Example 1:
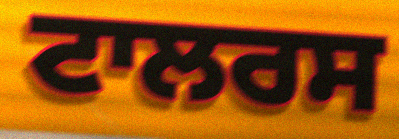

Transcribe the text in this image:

ਟਾਲਰਸ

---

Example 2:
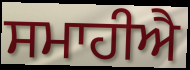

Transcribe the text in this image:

ਸਮਾਹੀਐ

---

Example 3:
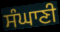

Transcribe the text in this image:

ਸੰਘਾਣੀ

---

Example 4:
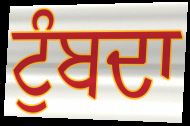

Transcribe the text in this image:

ਟੁੰਬਦਾ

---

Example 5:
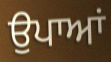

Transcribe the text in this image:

ਉਪਾਆਂ